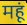
महूं